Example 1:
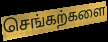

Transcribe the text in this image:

செங்கற்களை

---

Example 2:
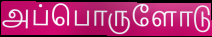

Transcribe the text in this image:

அப்பொருளோடு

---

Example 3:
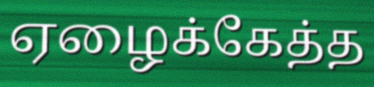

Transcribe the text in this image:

ஏழைக்கேத்த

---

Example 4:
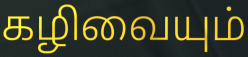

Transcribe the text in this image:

கழிவையும்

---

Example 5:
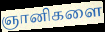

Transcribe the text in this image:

ஞானிகளை